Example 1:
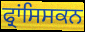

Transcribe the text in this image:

ਫ੍ਰਾਂਸਿਸਕਨ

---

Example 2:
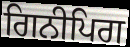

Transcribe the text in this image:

ਗਿਨੀਪਿਗ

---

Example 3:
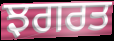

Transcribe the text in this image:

ਝਗਰਤ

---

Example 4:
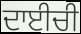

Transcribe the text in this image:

ਦਾਈਚੀ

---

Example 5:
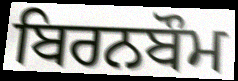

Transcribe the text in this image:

ਬਿਰਨਬੌਮ